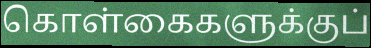
கொள்கைகளுக்குப்